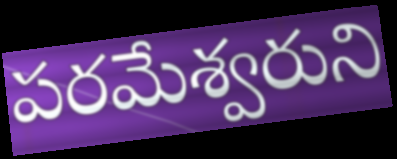
పరమేశ్వరుని